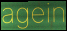
agein